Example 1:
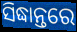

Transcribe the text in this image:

ସିଦ୍ଧାନ୍ତରେ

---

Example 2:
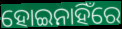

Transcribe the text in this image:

ହୋଇନାହିଁରେ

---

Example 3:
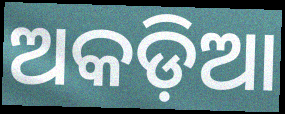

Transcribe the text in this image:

ଅକଡ଼ିଆ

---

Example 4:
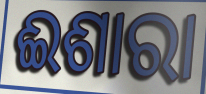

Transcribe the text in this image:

ଈଶାରା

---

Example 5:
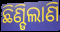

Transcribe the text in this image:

ଛିଣ୍ଡିଲାଣି